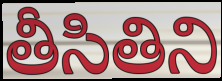
తీసితిని